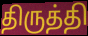
திருத்தி